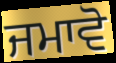
ਜਮਾਵੋ